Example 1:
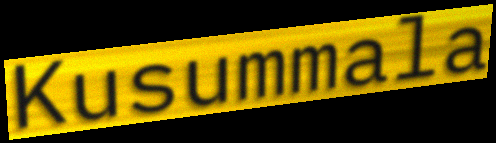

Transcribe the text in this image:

Kusummala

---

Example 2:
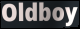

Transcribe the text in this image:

Oldboy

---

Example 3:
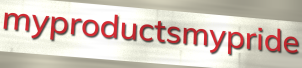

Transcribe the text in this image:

myproductsmypride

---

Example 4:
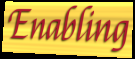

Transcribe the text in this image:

Enabling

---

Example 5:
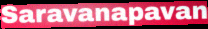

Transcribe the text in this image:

Saravanapavan